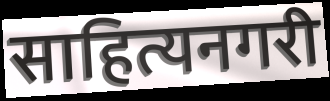
साहित्यनगरी